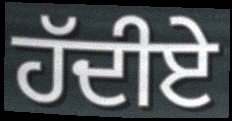
ਹੱਦੀਏ